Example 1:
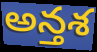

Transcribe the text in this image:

అన్తశ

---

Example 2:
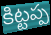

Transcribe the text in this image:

కిట్టప్ప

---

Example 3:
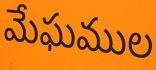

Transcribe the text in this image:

మేఘముల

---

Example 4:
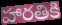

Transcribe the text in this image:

హారతికి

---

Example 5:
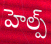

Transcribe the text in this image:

హెల్ప్